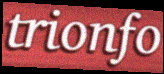
trionfo